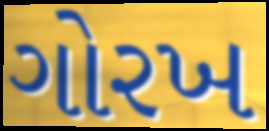
ગોરખ